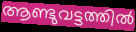
ആണ്ടുവട്ടത്തിൽ